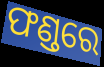
ଫଣ୍ଡରେ